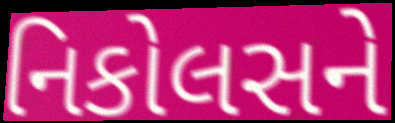
નિકોલસને